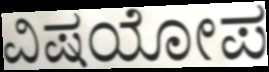
ವಿಷಯೋಪ